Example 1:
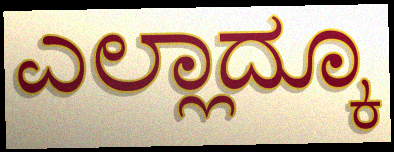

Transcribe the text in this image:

ಎಲ್ಲಾದ್ಕೂ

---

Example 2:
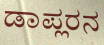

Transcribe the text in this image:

ಡಾಪ್ಲರನ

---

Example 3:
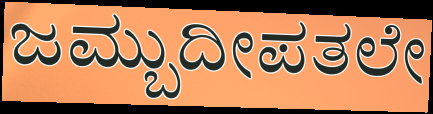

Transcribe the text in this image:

ಜಮ್ಬುದೀಪತಲೇ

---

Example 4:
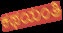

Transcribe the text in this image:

ಕಥಯಂತಿ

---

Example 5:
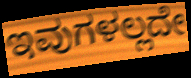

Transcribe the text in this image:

ಇವುಗಳಲ್ಲದೇ